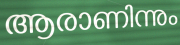
ആരാണിന്നും